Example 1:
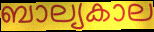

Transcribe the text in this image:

ബാല്യകാല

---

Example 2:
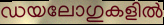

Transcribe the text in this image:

ഡയലോഗുകളിൽ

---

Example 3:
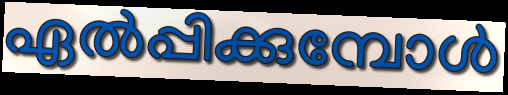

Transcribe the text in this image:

ഏൽപ്പിക്കുമ്പോൾ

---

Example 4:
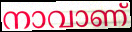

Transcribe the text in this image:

നാവാണ്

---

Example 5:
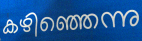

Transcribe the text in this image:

കഴിഞ്ഞെന്നു